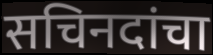
सचिनदांचा